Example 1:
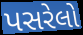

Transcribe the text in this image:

પસરેલો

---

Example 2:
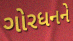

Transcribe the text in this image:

ગોરધનને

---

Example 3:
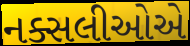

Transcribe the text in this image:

નક્સલીઓએ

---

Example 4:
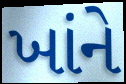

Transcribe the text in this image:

ખાંને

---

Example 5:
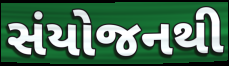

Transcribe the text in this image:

સંયોજનથી